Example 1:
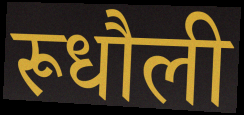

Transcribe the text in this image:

रूधौली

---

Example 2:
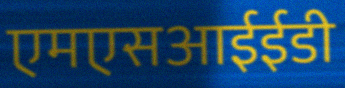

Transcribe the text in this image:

एमएसआईईडी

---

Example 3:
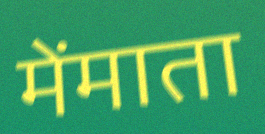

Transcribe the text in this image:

मेंमाता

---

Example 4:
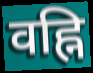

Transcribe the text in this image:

वह्नि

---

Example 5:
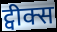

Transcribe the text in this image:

ट्वीक्स